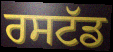
ਰਸਟੱਡ